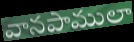
వానపాములా